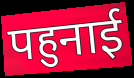
पहुनाई